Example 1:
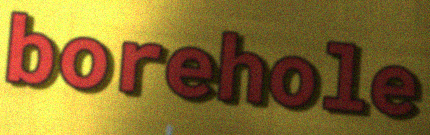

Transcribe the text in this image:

borehole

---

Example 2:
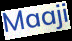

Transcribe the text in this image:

Maaji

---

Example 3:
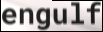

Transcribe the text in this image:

engulf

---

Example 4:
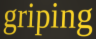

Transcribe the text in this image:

griping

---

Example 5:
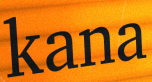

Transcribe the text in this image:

kana